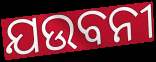
ଯଉବନୀ